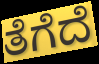
ತೆಗೆದೆ